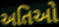
અતિઓ